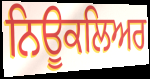
ਨਿਊਕਲਿਅਰ